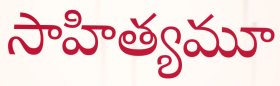
సాహిత్యమూ